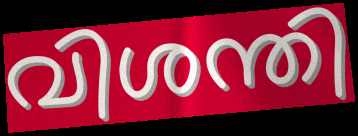
വിശന്തി